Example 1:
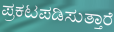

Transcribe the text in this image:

ಪ್ರಕಟಪಡಿಸುತ್ತಾರೆ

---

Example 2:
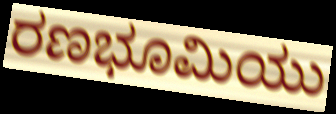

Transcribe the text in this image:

ರಣಭೂಮಿಯು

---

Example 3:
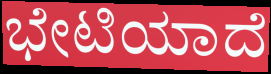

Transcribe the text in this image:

ಭೇಟಿಯಾದೆ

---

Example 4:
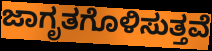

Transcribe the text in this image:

ಜಾಗೃತಗೊಳಿಸುತ್ತವೆ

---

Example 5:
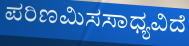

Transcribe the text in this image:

ಪರಿಣಮಿಸಸಾಧ್ಯವಿದೆ